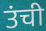
उंची